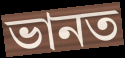
ভানত